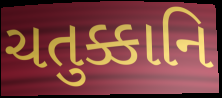
ચતુક્કાનિ